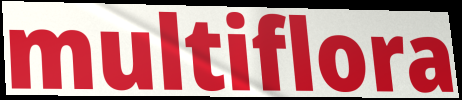
multiflora